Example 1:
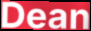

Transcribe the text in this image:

Dean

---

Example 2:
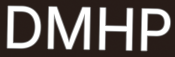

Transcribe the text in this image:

DMHP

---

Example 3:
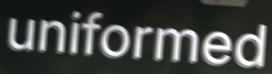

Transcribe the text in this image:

uniformed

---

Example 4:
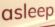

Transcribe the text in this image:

asleep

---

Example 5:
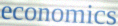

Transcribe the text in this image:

economics